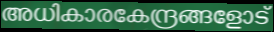
അധികാരകേന്ദ്രങ്ങളോട്